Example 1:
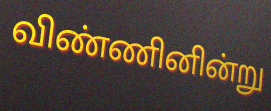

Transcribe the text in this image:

விண்ணினின்று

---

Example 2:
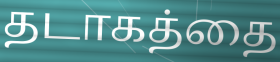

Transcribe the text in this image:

தடாகத்தை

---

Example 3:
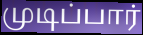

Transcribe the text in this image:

முடிப்பார்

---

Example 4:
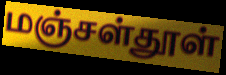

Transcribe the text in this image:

மஞ்சள்தூள்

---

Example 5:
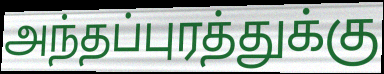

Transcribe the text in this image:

அந்தப்புரத்துக்கு